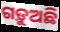
ଗଡ଼ୁଅଛି